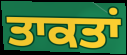
ਤਾਕਤਾਂ